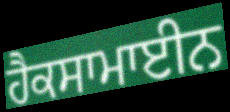
ਹੈਕਸਾਮਾਈਨ